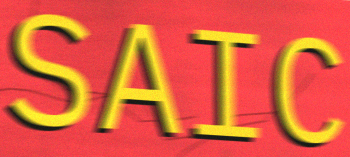
SAIC